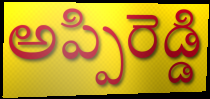
అప్పిరెడ్డి